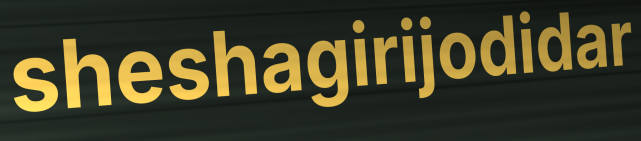
sheshagirijodidar